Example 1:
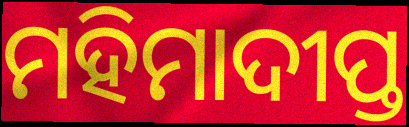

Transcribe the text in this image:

ମହିମାଦୀପ୍ତ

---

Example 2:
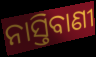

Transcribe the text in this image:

ନାସ୍ତିବାଣୀ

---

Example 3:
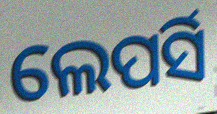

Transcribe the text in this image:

ଲେପର୍ସି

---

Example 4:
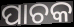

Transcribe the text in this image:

ପାଚକ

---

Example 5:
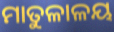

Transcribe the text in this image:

ମାତୁଳାଳୟ